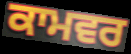
ਕਾਮਵਰ